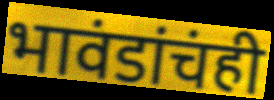
भावंडांचंही